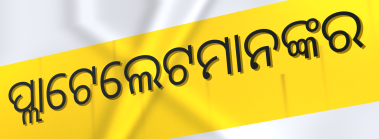
ପ୍ଲାଟେଲେଟମାନଙ୍କର